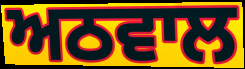
ਅਠਵਾਲ